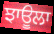
ਝਾਊਲਾ